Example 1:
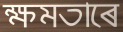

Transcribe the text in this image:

ক্ষমতাৰে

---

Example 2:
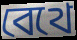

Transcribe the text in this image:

বেথে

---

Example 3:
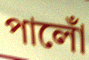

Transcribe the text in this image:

পালোঁ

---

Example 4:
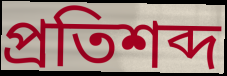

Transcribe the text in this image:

প্ৰতিশব্দ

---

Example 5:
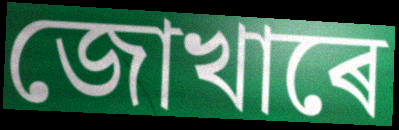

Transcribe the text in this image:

জোখাৰে